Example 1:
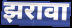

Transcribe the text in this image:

झरावा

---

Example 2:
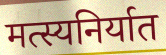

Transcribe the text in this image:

मत्स्यनिर्यात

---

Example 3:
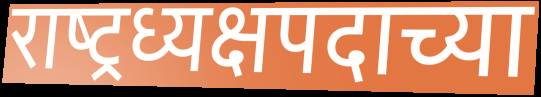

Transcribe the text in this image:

राष्ट्रध्यक्षपदाच्या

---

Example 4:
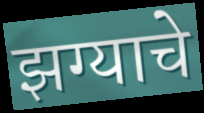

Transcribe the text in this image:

झग्याचे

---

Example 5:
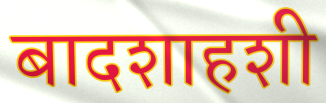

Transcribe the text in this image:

बादशाहशी